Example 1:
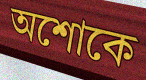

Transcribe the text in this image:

অশোকে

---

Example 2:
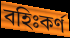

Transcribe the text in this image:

বহিঃকর্ণ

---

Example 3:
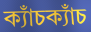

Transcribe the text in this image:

ক্যাঁচক্যাঁচ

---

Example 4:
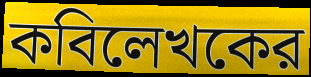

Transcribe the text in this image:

কবিলেখকের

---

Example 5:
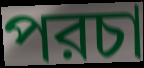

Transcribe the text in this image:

পরচা